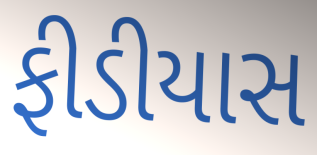
ફીડીયાસ